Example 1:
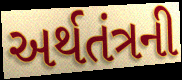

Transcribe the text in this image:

અર્થતંત્રની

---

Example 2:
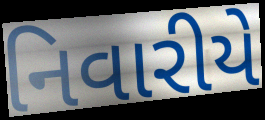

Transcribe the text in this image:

નિવારીયે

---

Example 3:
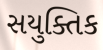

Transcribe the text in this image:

સયુક્તિક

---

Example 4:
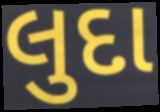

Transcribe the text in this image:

લુદા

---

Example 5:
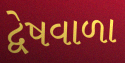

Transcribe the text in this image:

દ્વેષવાળા